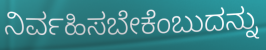
ನಿರ್ವಹಿಸಬೇಕೆಂಬುದನ್ನು